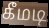
கீமடி